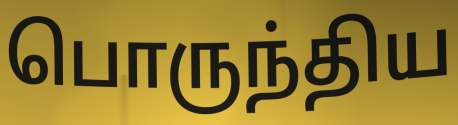
பொருந்திய